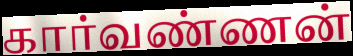
கார்வண்ணன்